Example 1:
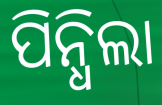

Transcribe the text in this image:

ପିନ୍ଧିଲା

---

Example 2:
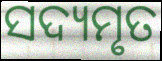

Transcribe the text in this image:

ସଦ୍ୟମୃତ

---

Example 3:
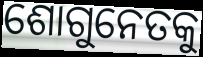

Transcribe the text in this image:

ଶୋଗୁନେତକୁ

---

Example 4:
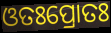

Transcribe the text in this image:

ଓତଃପ୍ରୋତଃ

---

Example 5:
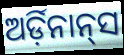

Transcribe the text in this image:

ଅର୍ଡ଼ିନାନ୍‌ସ